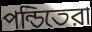
পন্ডিতেরা